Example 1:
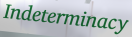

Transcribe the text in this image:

Indeterminacy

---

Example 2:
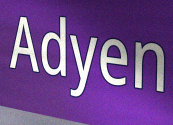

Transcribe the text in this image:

Adyen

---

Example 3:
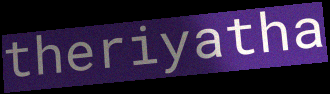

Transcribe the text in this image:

theriyatha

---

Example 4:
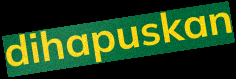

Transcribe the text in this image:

dihapuskan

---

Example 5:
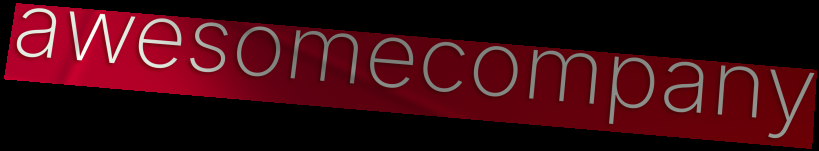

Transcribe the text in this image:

awesomecompany